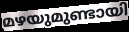
മഴയുമുണ്ടായി